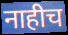
नाहीच